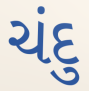
ચંદુ